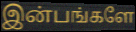
இன்பங்களே